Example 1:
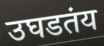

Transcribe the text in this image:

उघडतंय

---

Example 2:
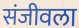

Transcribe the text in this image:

संजीवला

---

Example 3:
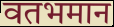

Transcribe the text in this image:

वतभमान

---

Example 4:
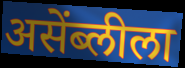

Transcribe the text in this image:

असेंब्लीला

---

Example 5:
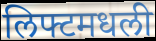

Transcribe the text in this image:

लिफ्टमधली